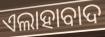
ଏଲାହାବାଦ